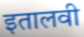
इतालवी